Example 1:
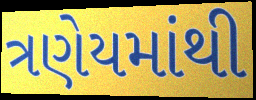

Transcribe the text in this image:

ત્રણેયમાંથી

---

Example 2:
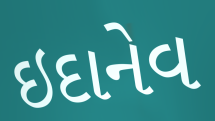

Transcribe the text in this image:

ઇદાનેવ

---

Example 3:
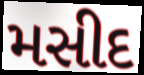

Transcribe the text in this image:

મસીદ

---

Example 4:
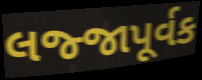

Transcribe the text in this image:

લજ્જાપૂર્વક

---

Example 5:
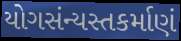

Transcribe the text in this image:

યોગસંન્યસ્તકર્માણં